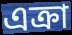
এক্রা